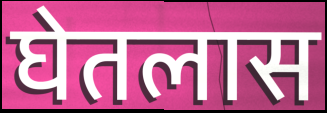
घेतलास